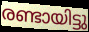
രണ്ടായിട്ടു